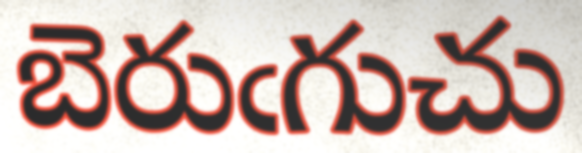
బెరుఁగుచు